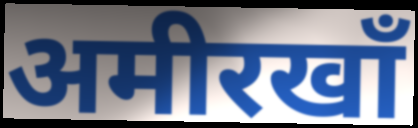
अमीरखाँ